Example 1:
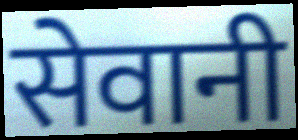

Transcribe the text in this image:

सेवानी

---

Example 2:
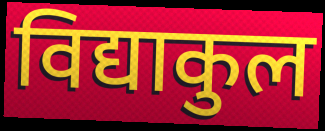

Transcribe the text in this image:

विद्याकुल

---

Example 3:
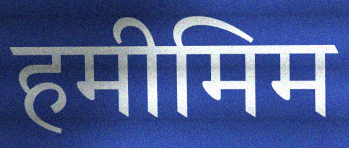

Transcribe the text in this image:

हमीमिम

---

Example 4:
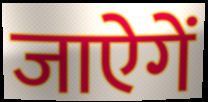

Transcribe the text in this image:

जाऐगें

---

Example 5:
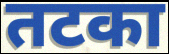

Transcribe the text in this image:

तटका